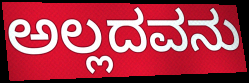
ಅಲ್ಲದವನು